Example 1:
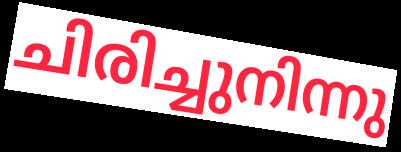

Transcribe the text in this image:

ചിരിച്ചുനിന്നു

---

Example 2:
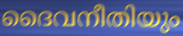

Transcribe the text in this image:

ദൈവനീതിയും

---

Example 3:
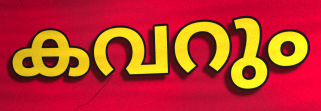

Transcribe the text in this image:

കവറും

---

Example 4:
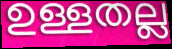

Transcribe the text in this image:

ഉള്ളതല്ല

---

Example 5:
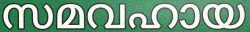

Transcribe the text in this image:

സമവഹായ